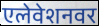
एलेवेशनवर